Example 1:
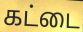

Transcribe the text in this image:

கட்டை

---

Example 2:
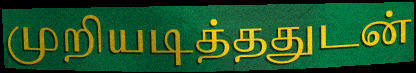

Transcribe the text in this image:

முறியடித்ததுடன்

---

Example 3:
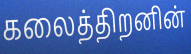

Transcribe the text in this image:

கலைத்திறனின்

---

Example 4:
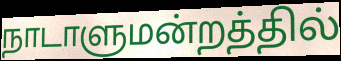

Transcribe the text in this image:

நாடாளுமன்றத்தில்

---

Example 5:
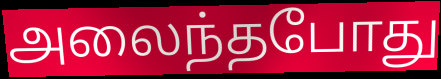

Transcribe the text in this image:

அலைந்தபோது